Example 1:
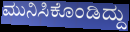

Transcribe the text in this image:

ಮುನಿಸಿಕೊಂಡಿದ್ದು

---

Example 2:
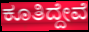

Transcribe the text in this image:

ಕೂತಿದ್ದೇವೆ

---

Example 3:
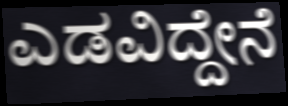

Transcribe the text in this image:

ಎಡವಿದ್ದೇನೆ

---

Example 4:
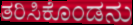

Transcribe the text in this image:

ತರಿಸಿಕೊಂಡನು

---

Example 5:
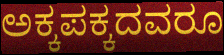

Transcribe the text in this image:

ಅಕ್ಕಪಕ್ಕದವರೂ